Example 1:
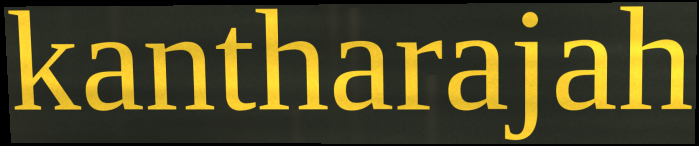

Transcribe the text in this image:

kantharajah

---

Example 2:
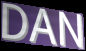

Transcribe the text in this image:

DAN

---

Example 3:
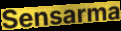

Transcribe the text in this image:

Sensarma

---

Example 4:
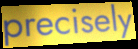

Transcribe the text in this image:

precisely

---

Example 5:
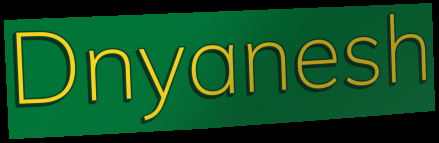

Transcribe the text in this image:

Dnyanesh